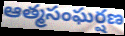
ఆత్మసంఘర్షణ